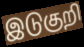
இடுகுறி